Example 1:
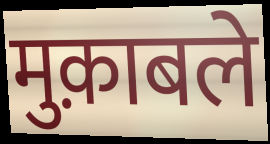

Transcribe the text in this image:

मुक़ाबले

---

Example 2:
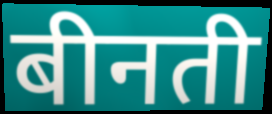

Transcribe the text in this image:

बीनती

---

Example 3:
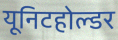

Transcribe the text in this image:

यूनिटहोल्डर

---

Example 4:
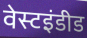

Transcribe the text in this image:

वेस्टइंडीड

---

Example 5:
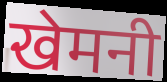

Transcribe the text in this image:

खेमनी